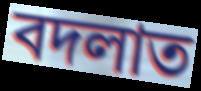
বদলাত